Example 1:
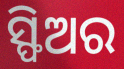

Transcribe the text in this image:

ସ୍ଫିଅର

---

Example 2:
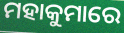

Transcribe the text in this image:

ମହାକୁମାରେ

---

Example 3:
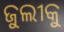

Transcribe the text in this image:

ଜୁଲୀକୁ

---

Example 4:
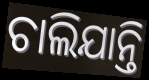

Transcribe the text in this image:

ଚାଲିଯାନ୍ତି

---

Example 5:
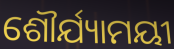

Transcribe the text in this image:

ଶୌର୍ଯ୍ୟାମୟୀ